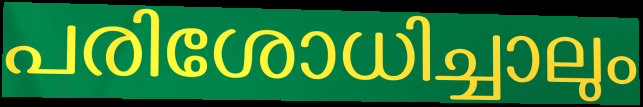
പരിശോധിച്ചാലും